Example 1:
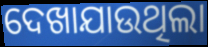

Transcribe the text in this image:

ଦେଖାଯାଉଥିଲା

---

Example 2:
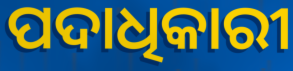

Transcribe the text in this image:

ପଦାଧିକାରୀ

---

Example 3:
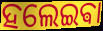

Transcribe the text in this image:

ହଲେଇଵା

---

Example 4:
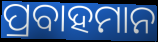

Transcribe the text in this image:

ପ୍ରବାହମାନ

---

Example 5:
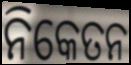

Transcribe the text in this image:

ନିକେତନ